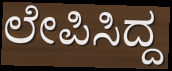
ಲೇಪಿಸಿದ್ದ